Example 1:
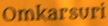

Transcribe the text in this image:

Omkarsuri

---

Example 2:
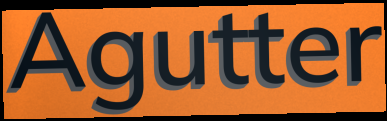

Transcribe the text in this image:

Agutter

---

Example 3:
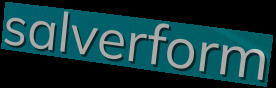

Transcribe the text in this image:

salverform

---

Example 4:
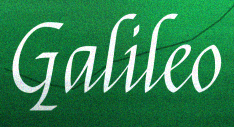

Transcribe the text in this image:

Galileo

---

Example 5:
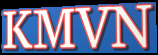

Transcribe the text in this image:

KMVN